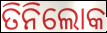
ତିନିଲୋକ